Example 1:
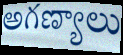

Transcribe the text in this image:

అగణ్యాలు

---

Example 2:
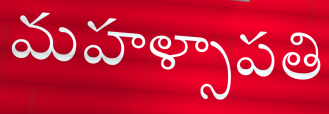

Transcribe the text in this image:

మహళ్సాపతి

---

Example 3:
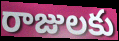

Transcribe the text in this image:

రాజులకు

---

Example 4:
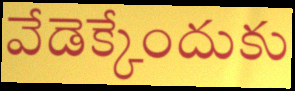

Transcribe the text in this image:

వేడెక్కేందుకు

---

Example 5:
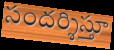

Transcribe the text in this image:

సందర్శిస్తూ